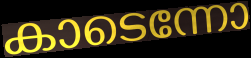
കാടെന്നോ